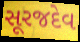
સૂરજદેવ